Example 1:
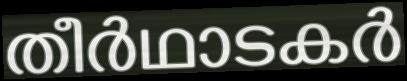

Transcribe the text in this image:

തീർഥാടകർ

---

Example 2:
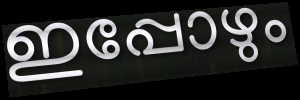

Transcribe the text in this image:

ഇപ്പോഴും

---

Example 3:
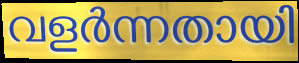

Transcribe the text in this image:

വളർന്നതായി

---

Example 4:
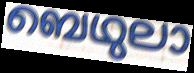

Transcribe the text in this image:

ബെഥുലാ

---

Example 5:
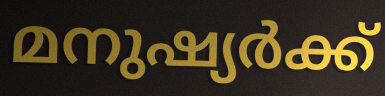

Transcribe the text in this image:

മനുഷ്യർക്ക്